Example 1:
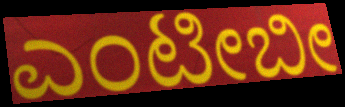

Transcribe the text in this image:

ಎಂಟೀಬೀ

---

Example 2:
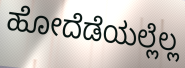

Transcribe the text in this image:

ಹೋದೆಡೆಯಲ್ಲೆಲ್ಲ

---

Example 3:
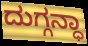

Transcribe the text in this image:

ದುಗ್ಗನ್ಧಾ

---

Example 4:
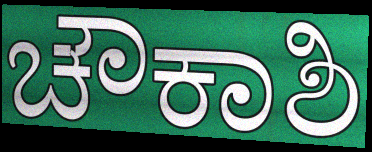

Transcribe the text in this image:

ಚೌಕಾಶಿ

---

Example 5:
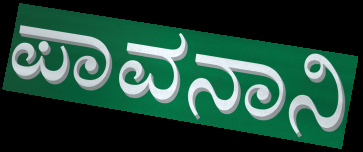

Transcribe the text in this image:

ಪಾವನಾನಿ